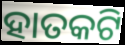
ହାତକଟି